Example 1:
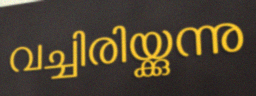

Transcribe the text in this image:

വച്ചിരിയ്ക്കുന്നു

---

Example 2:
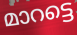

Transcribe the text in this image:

മാറട്ടെ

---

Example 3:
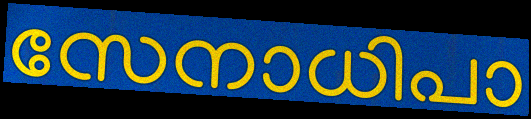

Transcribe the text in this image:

സേനാധിപാ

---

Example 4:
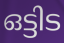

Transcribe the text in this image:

ഒട്ടിട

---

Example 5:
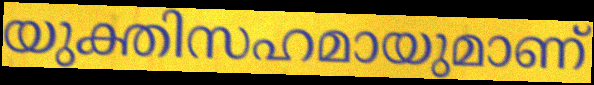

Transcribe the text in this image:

യുക്തിസഹമായുമാണ്